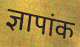
ज्ञापांक